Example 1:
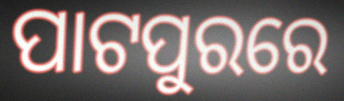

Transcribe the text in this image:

ପାଟପୁରରେ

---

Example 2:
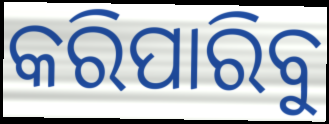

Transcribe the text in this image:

କରିପାରିବୁ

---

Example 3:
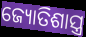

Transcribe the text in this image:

ଜ୍ୟୋତିଶାସ୍ତ୍ର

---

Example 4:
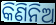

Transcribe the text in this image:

କିଣିନିଅ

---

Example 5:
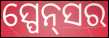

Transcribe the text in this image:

ସ୍ପେନ୍‌ସର